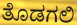
ತೊಡಗಲಿ